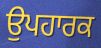
ਉਪਹਾਰਕ